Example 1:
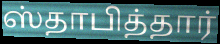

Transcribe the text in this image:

ஸ்தாபித்தார்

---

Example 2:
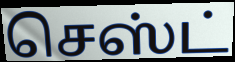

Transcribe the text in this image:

செஸ்ட்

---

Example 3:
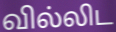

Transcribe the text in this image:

வில்லிட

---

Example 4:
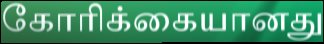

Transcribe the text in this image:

கோரிக்கையானது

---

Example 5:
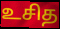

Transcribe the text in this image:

உசித